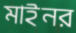
মাইনর